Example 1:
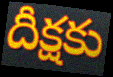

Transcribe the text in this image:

దీక్షకు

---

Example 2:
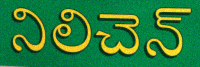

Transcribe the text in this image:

నిలిచెన్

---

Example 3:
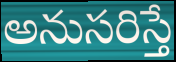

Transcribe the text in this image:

అనుసరిస్తే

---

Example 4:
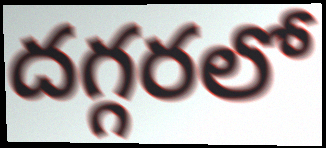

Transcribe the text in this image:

దగ్గరలో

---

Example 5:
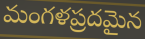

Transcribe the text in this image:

మంగళప్రదమైన